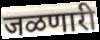
जळणारी